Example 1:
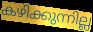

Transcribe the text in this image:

കഴിക്കുന്നില്ല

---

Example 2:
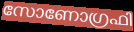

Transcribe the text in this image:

സോണോഗ്രഫി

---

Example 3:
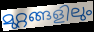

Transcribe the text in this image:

മുറ്റങ്ങളിലും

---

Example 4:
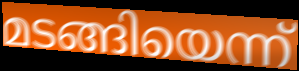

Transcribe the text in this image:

മടങ്ങിയെന്ന്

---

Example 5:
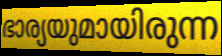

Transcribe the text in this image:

ഭാര്യയുമായിരുന്ന